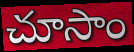
చూసాం